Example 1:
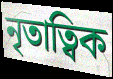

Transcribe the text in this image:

নৃতাত্বিক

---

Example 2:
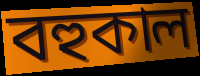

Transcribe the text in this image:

বহুকাল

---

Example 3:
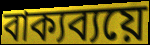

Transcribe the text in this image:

বাক্যব্যয়ে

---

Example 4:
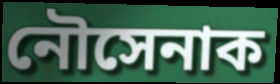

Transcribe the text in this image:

নৌসেনাক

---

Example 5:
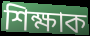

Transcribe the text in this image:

শিক্ষাক